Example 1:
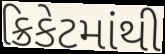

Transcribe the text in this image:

ક્રિકેટમાંથી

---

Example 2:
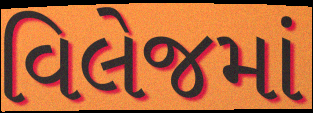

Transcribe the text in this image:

વિલેજમાં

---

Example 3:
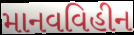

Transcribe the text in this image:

માનવવિહીન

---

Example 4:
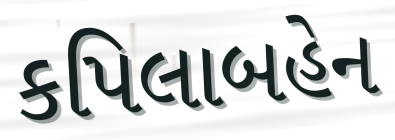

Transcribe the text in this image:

કપિલાબહેન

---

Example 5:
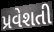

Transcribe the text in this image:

પ્રવેશતી